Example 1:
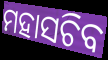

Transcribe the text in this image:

ମହାସଚିବ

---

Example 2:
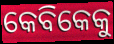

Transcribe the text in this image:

କେବିକେକୁ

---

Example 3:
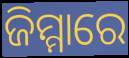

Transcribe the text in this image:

ଜିମ୍ମାରେ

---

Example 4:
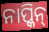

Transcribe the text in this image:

ନାପ୍କିନ୍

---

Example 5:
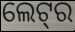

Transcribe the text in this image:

ଲେଟ୍‌ର